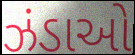
ઝંડાઓ